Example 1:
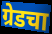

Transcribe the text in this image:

ग्रेडचा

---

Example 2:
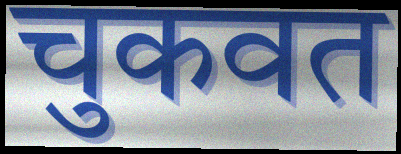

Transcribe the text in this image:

चुकवत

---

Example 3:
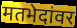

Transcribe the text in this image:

मतभेदांवर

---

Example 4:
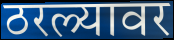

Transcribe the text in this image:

ठरल्यावर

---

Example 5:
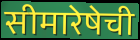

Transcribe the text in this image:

सीमारेषेची